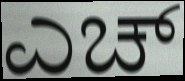
ಎಚ್